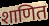
शाणित